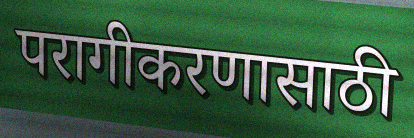
परागीकरणासाठी